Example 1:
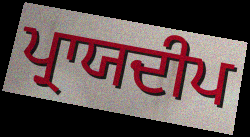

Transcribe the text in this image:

ਪ੍ਰਾਯਦੀਪ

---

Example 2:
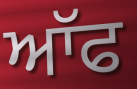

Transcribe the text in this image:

ਆੱਫ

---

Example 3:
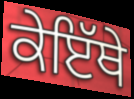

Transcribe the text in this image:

ਕੇਇੱਥੇ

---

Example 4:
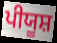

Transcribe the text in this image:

ਪੀਯੂਸ਼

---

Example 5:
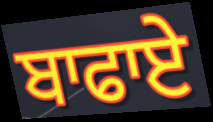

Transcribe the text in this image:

ਬਾਫਾਏ